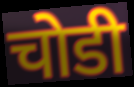
चोडी